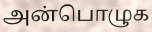
அன்பொழுக